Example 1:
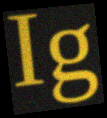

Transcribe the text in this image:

Ig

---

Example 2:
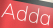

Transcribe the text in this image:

Adda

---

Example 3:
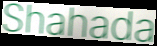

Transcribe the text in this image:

Shahada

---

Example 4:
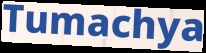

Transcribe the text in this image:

Tumachya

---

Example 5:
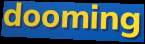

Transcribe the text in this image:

dooming